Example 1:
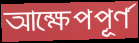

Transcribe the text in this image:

আক্ষেপপূর্ণ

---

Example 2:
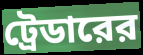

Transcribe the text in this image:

ট্রেডারের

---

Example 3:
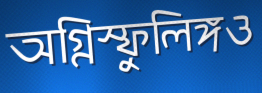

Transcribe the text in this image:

অগ্নিস্ফুলিঙ্গও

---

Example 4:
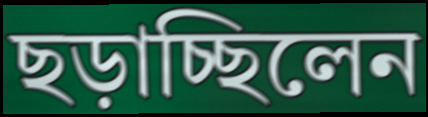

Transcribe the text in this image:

ছড়াচ্ছিলেন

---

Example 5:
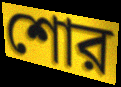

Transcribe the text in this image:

শোর